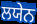
ਲਯੇਨ